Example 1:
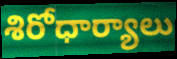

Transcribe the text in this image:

శిరోధార్యాలు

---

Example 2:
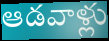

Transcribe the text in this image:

ఆడవాళ్లు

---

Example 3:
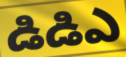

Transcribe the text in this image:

డిడిఎ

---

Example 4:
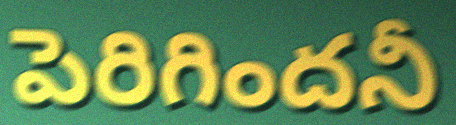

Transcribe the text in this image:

పెరిగిందనీ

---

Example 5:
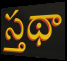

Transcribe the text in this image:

స్తథా